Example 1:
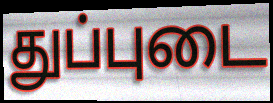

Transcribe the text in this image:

துப்புடை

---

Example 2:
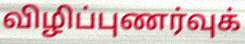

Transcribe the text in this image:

விழிப்புணர்வுக்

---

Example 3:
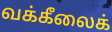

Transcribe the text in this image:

வக்கீலைக்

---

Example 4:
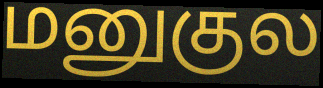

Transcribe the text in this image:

மனுகுல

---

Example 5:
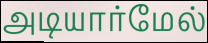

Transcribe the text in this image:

அடியார்மேல்